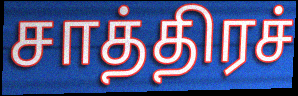
சாத்திரச்